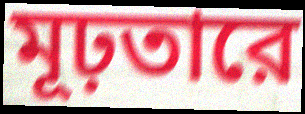
মূঢ়তারে